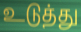
உடுத்து